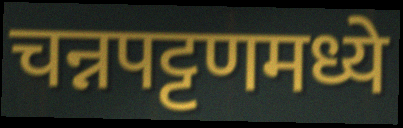
चन्नपट्टणमध्ये